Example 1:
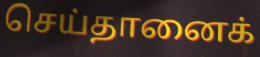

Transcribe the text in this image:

செய்தானைக்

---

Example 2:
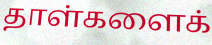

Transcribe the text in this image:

தாள்களைக்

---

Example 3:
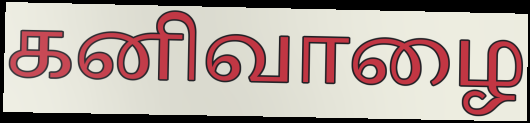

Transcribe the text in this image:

கனிவாழை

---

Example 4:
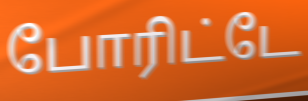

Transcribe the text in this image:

போரிட்டே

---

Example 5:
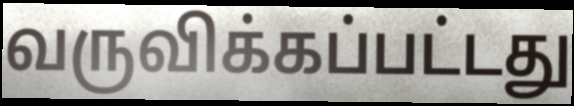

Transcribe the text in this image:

வருவிக்கப்பட்டது